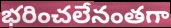
భరించలేనంతగా